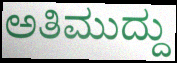
ಅತಿಮುದ್ದು